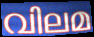
വിലമ